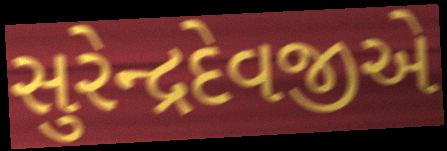
સુરેન્દ્રદેવજીએ